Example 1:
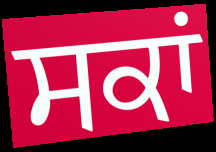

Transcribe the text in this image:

ਸਕਾਂ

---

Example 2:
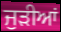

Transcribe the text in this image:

ਜੁੜੀਆਂ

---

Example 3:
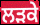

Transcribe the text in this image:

ਲੜਕੇ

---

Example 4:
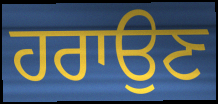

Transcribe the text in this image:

ਹਰਾਉਣ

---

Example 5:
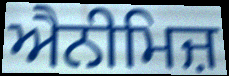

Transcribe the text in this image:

ਐਨੀਮਿਜ਼